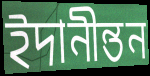
ইদানীন্তন